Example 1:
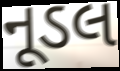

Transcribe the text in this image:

નૂડલ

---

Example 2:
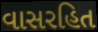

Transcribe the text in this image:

વાસરહિત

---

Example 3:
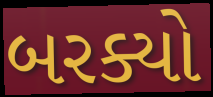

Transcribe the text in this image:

બરક્યો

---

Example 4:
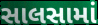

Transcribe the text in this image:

સાલસામાં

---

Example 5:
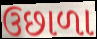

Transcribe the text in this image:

ઉછાળા